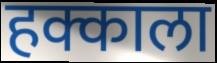
हक्काला